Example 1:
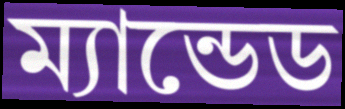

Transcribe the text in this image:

ম্যান্ডেড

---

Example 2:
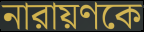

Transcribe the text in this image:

নারায়ণকে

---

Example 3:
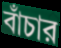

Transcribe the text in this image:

বাঁচার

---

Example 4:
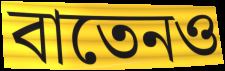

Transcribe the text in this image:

বাতেনও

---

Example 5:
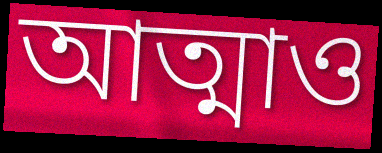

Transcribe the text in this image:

আত্মাও